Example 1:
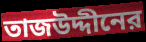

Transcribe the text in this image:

তাজউদ্দীনের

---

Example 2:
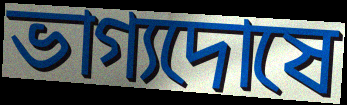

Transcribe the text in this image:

ভাগ্যদোষে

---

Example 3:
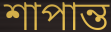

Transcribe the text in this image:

শাপান্ত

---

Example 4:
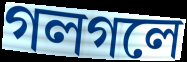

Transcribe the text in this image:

গলগলে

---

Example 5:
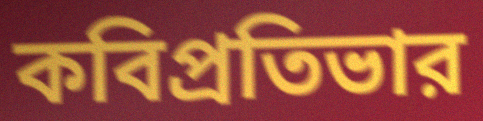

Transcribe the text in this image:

কবিপ্রতিভার